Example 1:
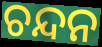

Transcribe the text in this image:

ଚନ୍ଦନ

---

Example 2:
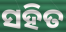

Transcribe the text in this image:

ସହିତ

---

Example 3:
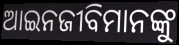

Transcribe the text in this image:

ଆଇନଜୀବିମାନଙ୍କୁ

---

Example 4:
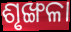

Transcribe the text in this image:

ଶୃଙ୍ଖଳା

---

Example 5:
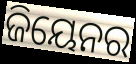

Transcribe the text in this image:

ଜିୟେନର